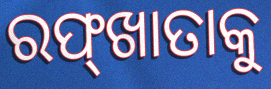
ରଫ୍‌ଖାତାକୁ